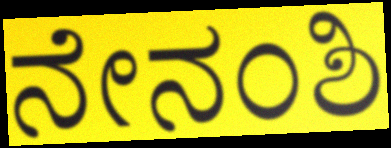
ನೇನಂಶಿ